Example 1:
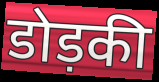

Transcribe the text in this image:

डोड़की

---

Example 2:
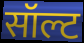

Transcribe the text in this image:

सॉल्‍ट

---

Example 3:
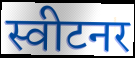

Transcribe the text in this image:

स्वीटनर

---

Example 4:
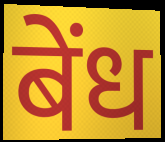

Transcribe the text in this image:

बेंध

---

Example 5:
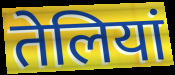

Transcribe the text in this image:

तेलियां